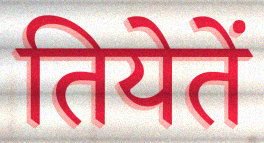
तियेतें